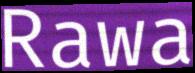
Rawa